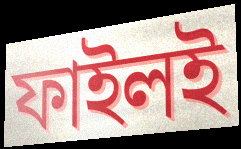
ফাইলই